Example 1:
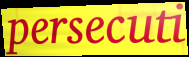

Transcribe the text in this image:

persecuti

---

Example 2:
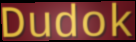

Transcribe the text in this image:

Dudok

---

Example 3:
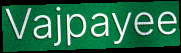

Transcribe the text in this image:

Vajpayee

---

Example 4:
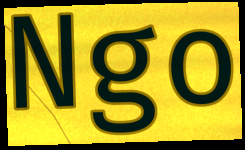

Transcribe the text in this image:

Ngo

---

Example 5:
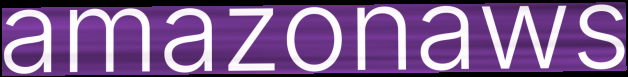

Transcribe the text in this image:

amazonaws